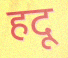
हदू